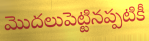
మొదలుపెట్టినప్పటికీ